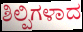
ಶಿಲ್ಪಿಗಳಾದ